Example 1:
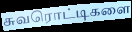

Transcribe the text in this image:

சுவரொட்டிகளை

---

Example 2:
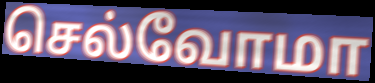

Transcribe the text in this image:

செல்வோமா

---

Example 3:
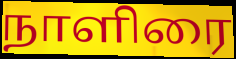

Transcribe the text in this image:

நாளிரை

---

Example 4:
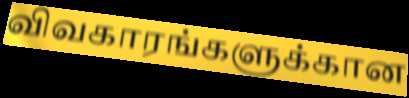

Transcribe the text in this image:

விவகாரங்களுக்கான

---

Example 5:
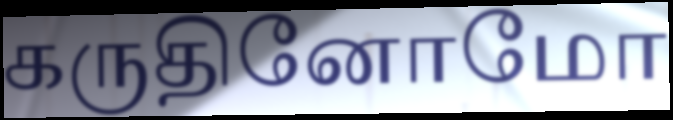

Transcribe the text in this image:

கருதினோமோ